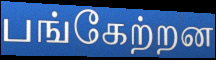
பங்கேற்றன